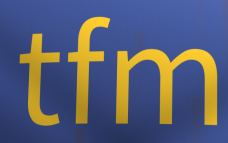
tfm